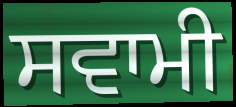
ਸਵਾਮੀ